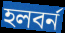
হলবর্ন